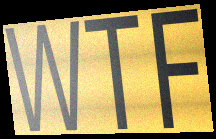
WTF